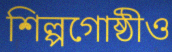
শিল্পগোষ্ঠীও